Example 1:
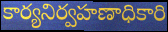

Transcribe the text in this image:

కార్యనిర్వహణాధికారి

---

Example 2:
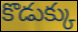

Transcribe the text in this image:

కొడుక్కు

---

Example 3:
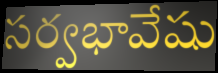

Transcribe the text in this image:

సర్వభావేషు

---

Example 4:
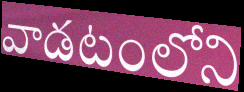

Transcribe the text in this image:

వాడటంలోని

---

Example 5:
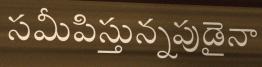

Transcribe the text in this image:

సమీపిస్తున్నపుడైనా